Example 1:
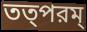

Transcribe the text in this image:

তত্পরম্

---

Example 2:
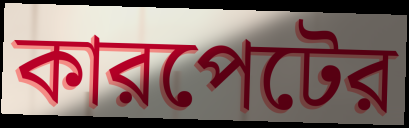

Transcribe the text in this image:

কারপেটের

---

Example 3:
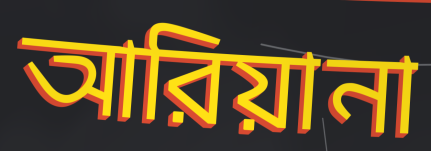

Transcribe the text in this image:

আরিয়ানা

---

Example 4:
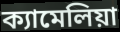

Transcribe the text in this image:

ক্যামেলিয়া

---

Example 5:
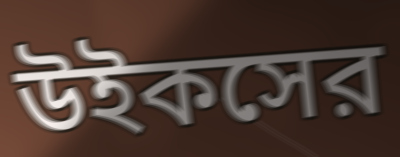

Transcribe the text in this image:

উইকসের